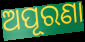
ଅପୂରଣା